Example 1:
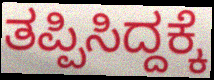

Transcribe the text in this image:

ತಪ್ಪಿಸಿದ್ದಕ್ಕೆ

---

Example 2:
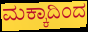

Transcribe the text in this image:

ಮಕ್ಕಾದಿಂದ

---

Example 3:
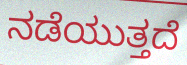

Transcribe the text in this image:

ನಡೆಯುತ್ತದೆ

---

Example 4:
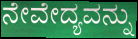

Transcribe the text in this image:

ನೇವೇದ್ಯವನ್ನು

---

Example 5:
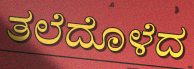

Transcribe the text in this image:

ತಲೆದೊಳೆದ